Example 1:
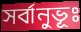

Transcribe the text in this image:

সর্বানুভূঃ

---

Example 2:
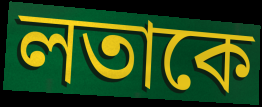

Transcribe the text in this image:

লতাকে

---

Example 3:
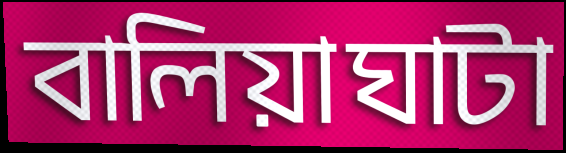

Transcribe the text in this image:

বালিয়াঘাটা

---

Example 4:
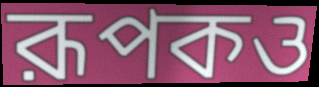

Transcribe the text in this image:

রূপকও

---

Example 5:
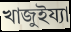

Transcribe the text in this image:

খাজুইয্যা